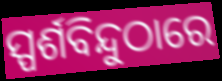
ସ୍ପର୍ଶବିନ୍ଦୁଠାରେ